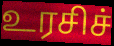
உரசிச்